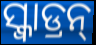
ସ୍କ୍ୱାଡ୍ରନ୍